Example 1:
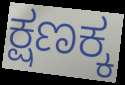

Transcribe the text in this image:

ಕ್ಷಣಕ್ಕ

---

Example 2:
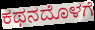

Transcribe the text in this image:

ಕಥನದೊಳಗೆ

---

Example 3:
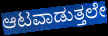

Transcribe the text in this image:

ಆಟವಾಡುತ್ತಲೇ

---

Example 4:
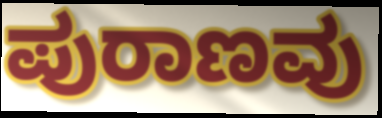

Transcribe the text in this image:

ಪುರಾಣವು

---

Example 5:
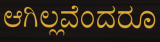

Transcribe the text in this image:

ಆಗಿಲ್ಲವೆಂದರೂ